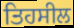
ਤਿਹਸੀਲ